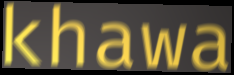
khawa